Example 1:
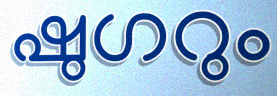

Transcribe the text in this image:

ഷുഗറും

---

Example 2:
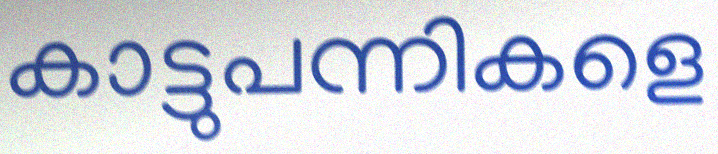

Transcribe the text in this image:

കാട്ടുപന്നികളെ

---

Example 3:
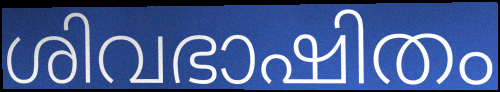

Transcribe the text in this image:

ശിവഭാഷിതം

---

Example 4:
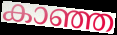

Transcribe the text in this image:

കാഞ്ഞ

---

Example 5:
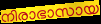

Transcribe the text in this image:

നിരാഭാസായ